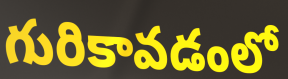
గురికావడంలో